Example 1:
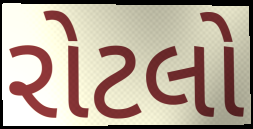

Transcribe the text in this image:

રોટલો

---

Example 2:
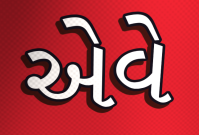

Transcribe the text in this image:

એવે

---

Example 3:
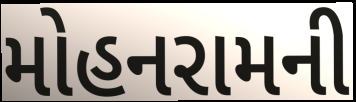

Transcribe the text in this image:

મોહનરામની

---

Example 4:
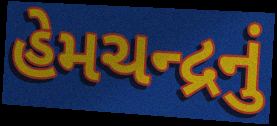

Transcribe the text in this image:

હેમચન્દ્રનું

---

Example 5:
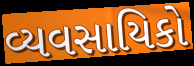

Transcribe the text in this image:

વ્યવસાયિકો